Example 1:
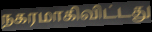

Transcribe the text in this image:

நகரமாகிவிட்டது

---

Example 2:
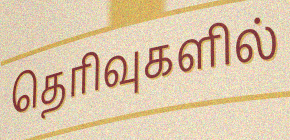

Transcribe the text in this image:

தெரிவுகளில்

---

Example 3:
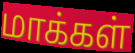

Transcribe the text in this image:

மாக்கள்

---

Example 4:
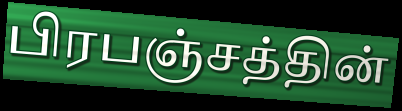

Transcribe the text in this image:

பிரபஞ்சத்தின்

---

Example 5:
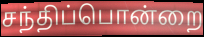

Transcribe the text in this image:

சந்திப்பொன்றை